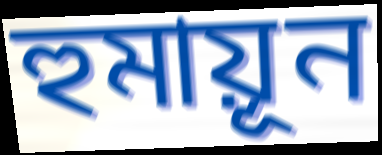
হুমায়ূন